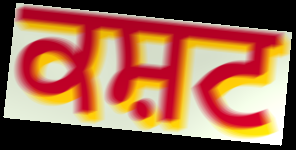
ਕਸ਼ਟ